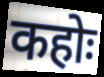
कहोः